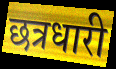
छत्रधारी